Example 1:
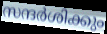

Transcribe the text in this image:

സന്ദർശിക്കും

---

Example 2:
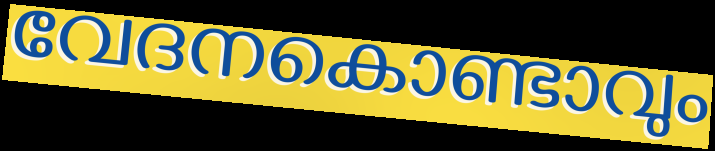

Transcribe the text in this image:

വേദനകൊണ്ടാവും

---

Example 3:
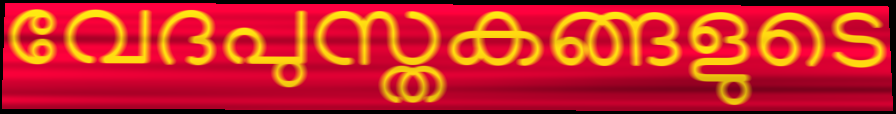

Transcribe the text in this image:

വേദപുസ്തകങ്ങളുടെ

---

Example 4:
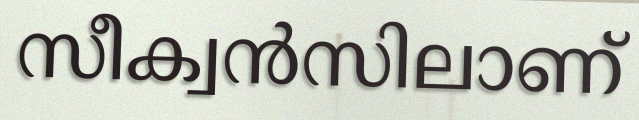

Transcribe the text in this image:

സീക്വൻസിലാണ്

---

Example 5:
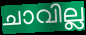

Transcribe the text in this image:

ചാവില്ല